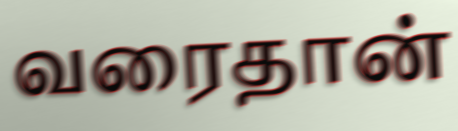
வரைதான்